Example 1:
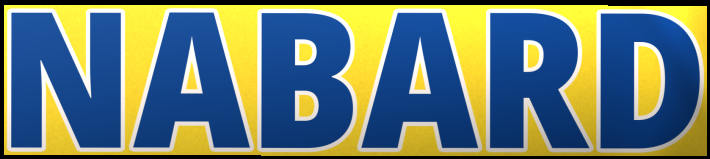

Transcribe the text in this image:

NABARD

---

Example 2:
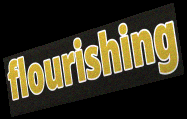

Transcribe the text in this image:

flourishing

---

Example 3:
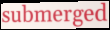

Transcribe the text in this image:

submerged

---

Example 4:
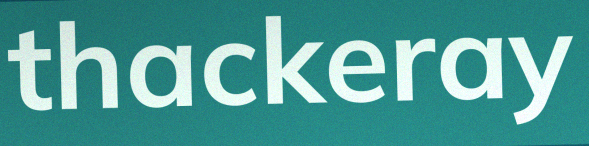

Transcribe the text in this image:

thackeray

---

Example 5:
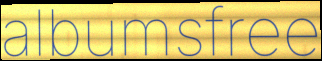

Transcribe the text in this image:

albumsfree